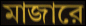
মাজারে